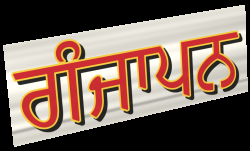
ਗੰਜਾਪਨ